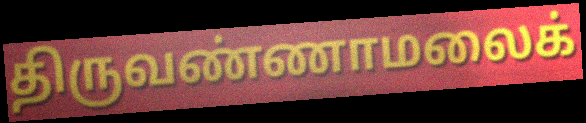
திருவண்ணாமலைக்